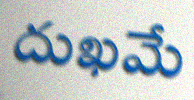
దుఖమే